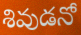
శివుడనో